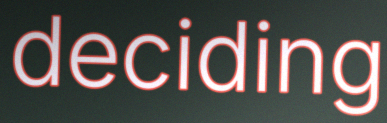
deciding